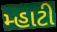
મ્હાટી